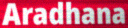
Aradhana